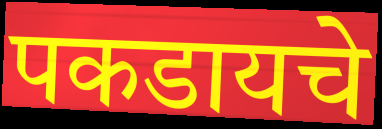
पकडायचे